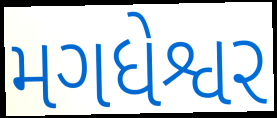
મગધેશ્વર